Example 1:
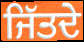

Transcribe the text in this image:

ਜਿੱਤਦੇ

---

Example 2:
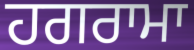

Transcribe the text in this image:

ਹਗਰਾਮਾ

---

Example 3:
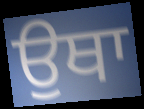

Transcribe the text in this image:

ਉਥਾ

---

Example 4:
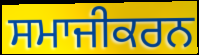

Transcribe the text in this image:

ਸਮਾਜੀਕਰਨ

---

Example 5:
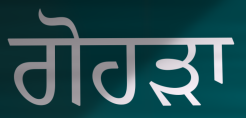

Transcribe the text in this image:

ਗੋਹੜਾ